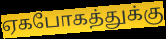
ஏகபோகத்துக்கு